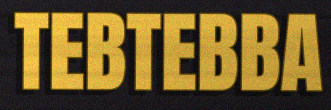
TEBTEBBA